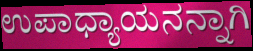
ಉಪಾಧ್ಯಾಯನನ್ನಾಗಿ